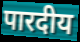
पारदीय